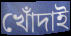
খোঁদাই